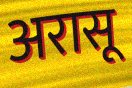
अरासू